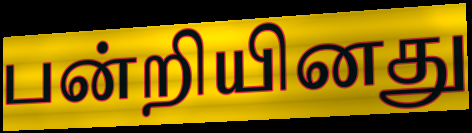
பன்றியினது